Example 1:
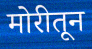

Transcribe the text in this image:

मोरीतून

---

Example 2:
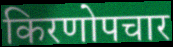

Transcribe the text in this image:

किरणोपचार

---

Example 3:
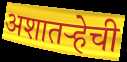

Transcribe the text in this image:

अशातऱ्हेची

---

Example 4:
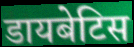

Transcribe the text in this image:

डायबेटिस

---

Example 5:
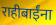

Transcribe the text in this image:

राहीबाईंना